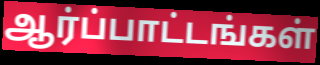
ஆர்ப்பாட்டங்கள்